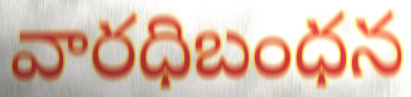
వారధిబంధన